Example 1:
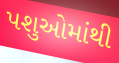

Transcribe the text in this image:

પશુઓમાંથી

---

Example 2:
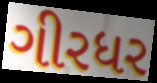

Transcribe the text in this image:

ગીરધર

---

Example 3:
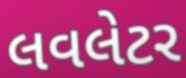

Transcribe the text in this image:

લવલેટર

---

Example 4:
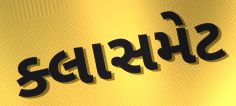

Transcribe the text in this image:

ક્લાસમેટ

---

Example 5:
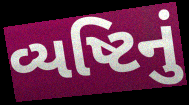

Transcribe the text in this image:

વ્યષ્ટિનું